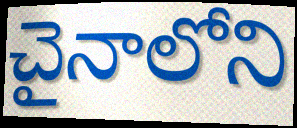
చైనాలోని